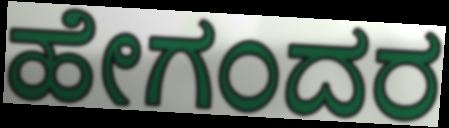
ಹೇಗಂದರ